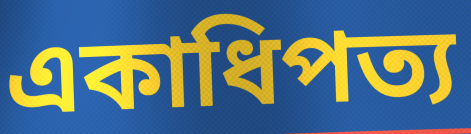
একাধিপত্য